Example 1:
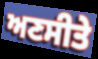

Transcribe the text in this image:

ਅਣਸੀਤੇ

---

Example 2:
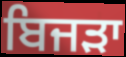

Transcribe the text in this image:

ਬਿਜੜਾ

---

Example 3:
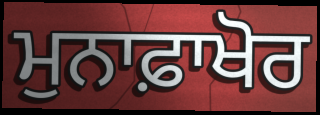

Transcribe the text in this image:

ਮੁਨਾਫ਼ਾਖੋਰ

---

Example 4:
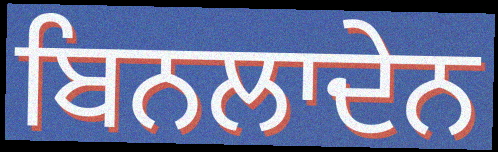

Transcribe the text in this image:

ਬਿਨਲਾਦੇਨ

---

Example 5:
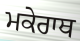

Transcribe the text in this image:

ਮਕੇਰਾਥ